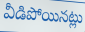
వీడిపోయినట్లు